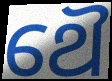
ଥୈ